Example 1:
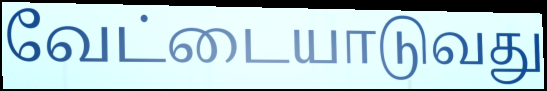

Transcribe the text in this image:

வேட்டையாடுவது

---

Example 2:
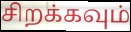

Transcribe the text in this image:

சிறக்கவும்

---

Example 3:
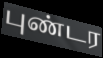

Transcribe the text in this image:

புண்டர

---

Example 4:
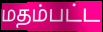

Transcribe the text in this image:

மதம்பட்ட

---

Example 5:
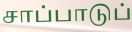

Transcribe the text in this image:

சாப்பாடுப்